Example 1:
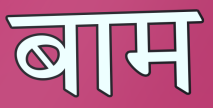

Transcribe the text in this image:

बाम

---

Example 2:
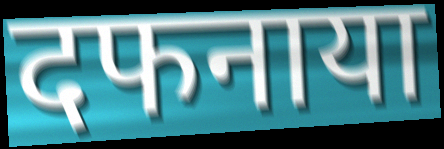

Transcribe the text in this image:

दफनाया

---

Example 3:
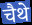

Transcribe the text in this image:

चैथे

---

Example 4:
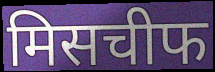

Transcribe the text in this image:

मिसचीफ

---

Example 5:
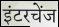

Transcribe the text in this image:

इंटरचेंज